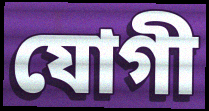
যোগী